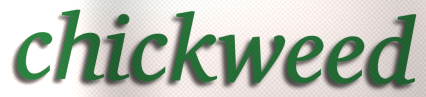
chickweed